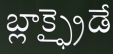
బ్లాక్ఫ్రైడే